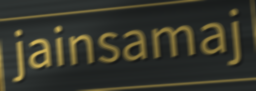
jainsamaj